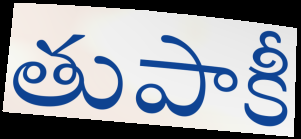
తుపాకీ